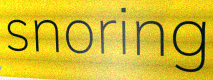
snoring